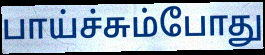
பாய்ச்சும்போது